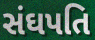
સંઘપતિ